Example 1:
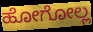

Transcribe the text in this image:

ಹೋಗೋಲ್ಲ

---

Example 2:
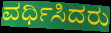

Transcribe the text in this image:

ವರ್ಧಿಸಿದರು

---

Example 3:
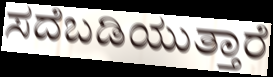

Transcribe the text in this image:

ಸದೆಬಡಿಯುತ್ತಾರೆ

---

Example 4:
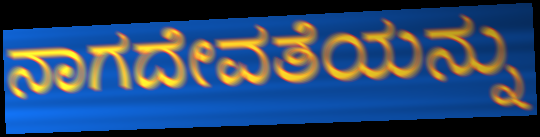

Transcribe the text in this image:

ನಾಗದೇವತೆಯನ್ನು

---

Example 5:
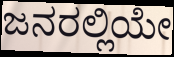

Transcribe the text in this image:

ಜನರಲ್ಲಿಯೇ